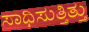
ಸಾಧಿಸುತ್ತಿತ್ತು